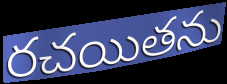
రచయితను